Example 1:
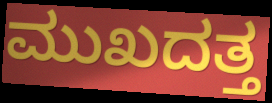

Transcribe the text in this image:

ಮುಖದತ್ತ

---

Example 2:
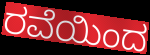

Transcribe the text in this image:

ರವೆಯಿಂದ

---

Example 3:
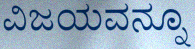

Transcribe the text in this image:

ವಿಜಯವನ್ನೂ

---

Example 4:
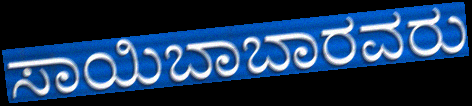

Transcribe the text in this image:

ಸಾಯಿಬಾಬಾರವರು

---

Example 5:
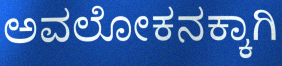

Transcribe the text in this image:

ಅವಲೋಕನಕ್ಕಾಗಿ